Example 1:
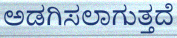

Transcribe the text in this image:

ಅಡಗಿಸಲಾಗುತ್ತದೆ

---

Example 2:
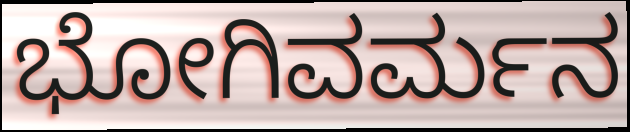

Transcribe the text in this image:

ಭೋಗಿವರ್ಮನ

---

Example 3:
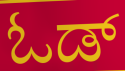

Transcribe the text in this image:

ಓಡ್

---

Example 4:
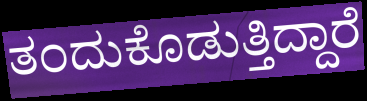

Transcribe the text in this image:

ತಂದುಕೊಡುತ್ತಿದ್ದಾರೆ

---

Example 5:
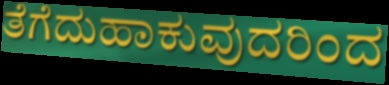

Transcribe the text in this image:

ತೆಗೆದುಹಾಕುವುದರಿಂದ